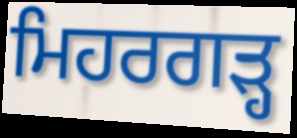
ਮਿਹਰਗੜ੍ਹ